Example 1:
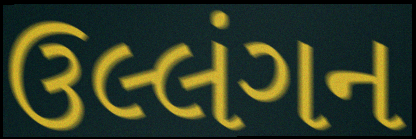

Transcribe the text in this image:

ઉલ્લંગન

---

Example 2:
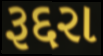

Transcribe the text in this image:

રૂદ્દરા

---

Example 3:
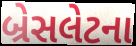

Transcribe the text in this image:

બ્રેસલેટના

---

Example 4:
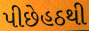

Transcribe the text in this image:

પીછેહઠથી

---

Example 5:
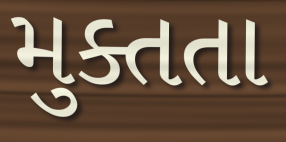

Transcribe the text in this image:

મુક્તતા